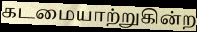
கடமையாற்றுகின்ற